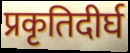
प्रकृतिदीर्घ